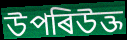
উপৰিউক্ত